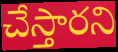
చేస్తారని